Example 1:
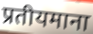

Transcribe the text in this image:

प्रतीयमाना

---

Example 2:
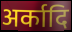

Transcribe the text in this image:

अर्कादि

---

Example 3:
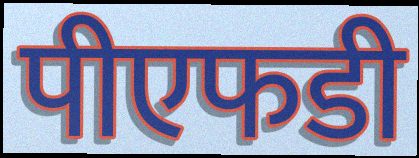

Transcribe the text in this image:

पीएफडी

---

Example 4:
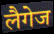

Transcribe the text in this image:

लैगेज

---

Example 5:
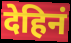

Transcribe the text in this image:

देहिनं